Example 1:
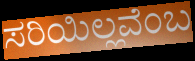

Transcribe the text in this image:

ಸರಿಯಿಲ್ಲವೆಂಬ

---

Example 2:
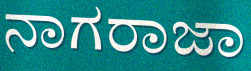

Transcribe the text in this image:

ನಾಗರಾಜಾ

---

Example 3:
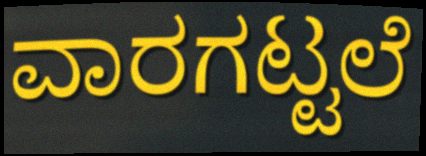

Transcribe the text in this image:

ವಾರಗಟ್ಟಲೆ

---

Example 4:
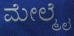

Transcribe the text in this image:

ಮೇಲ್ಮೈ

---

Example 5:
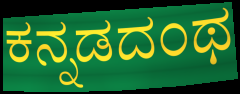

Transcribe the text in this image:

ಕನ್ನಡದಂಥ